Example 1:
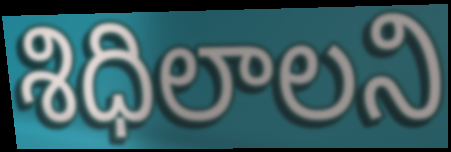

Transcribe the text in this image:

శిధిలాలని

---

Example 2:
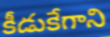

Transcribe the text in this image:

కీడుకేగాని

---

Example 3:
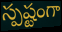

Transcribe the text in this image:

స్పష్టంగా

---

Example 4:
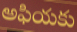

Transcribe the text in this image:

అఫియకు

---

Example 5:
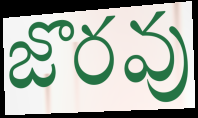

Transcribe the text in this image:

జొరవు